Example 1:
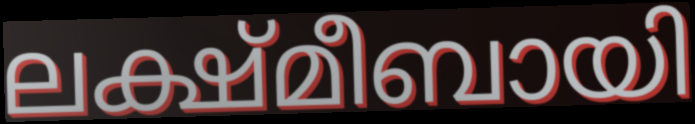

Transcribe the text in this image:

ലക്ഷ്മീബായി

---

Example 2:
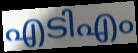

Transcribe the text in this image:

എടിഎം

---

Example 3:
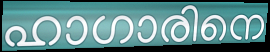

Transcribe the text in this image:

ഹാഗാരിനെ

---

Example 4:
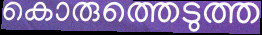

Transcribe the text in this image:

കൊരുത്തെടുത്ത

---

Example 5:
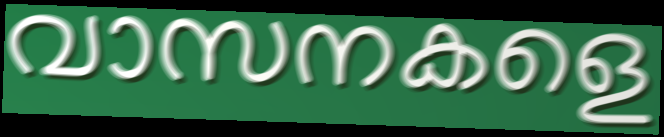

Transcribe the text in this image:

വാസനകളെ